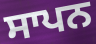
ਸਾਪਨ